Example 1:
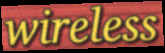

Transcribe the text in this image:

wireless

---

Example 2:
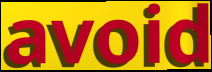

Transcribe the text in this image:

avoid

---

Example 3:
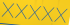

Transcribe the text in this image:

xxxxx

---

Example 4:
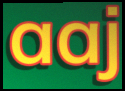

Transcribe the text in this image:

aaj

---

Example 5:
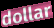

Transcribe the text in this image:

dollar